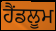
ਹੈਂਡਲੂਮ